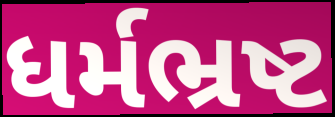
ધર્મભ્રષ્ટ